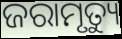
ଜରାମୃତ୍ୟୁ